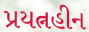
પ્રયત્નહીન